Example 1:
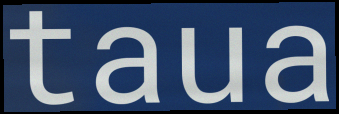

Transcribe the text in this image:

taua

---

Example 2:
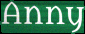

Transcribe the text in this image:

Anny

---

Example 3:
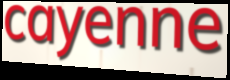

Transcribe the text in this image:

cayenne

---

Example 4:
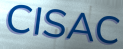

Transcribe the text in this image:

CISAC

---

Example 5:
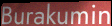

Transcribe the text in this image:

Burakumin